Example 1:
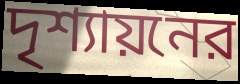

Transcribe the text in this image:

দৃশ্যায়নের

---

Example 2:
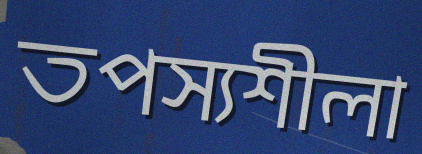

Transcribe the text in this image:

তপস্যশীলা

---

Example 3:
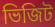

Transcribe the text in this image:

ভিজিট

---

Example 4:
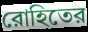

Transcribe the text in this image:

রোহিতের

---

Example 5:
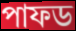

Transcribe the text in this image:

পাফড